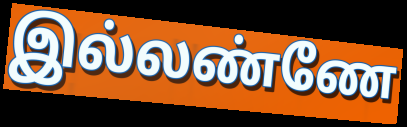
இல்லண்ணே